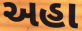
અહા